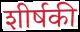
शीर्षकी